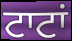
ਟਾਟਾਂ